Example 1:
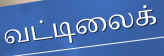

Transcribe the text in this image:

வட்டிலைக்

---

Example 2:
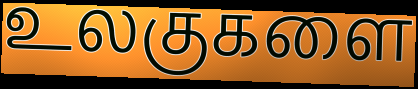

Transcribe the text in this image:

உலகுகளை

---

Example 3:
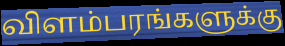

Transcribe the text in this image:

விளம்பரங்களுக்கு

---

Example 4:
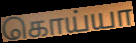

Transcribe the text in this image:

கொய்யா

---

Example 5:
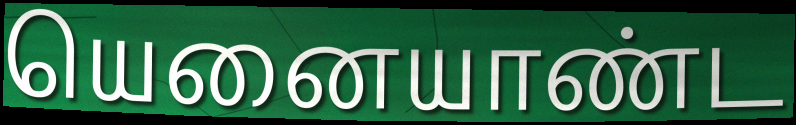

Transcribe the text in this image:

யெனையாண்ட